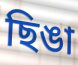
ছিঙা